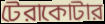
টেরাকোটার